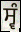
ਸ੍ਵੰ